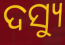
ଦସ୍ୟୁ